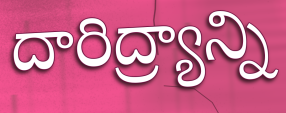
దారిద్ర్యాన్ని